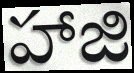
హాజి